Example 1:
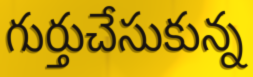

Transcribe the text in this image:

గుర్తుచేసుకున్న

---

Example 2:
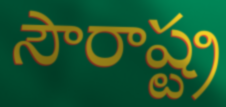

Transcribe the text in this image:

సౌరాష్ట్ర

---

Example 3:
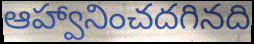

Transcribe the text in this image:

ఆహ్వానించదగినది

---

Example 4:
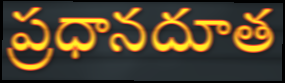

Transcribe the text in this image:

ప్రధానదూత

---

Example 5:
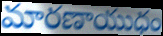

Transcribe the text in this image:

మారణాయుధం